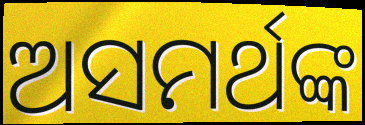
ଅସମର୍ଥଙ୍କ